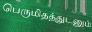
பெருமிதத்துடனும்